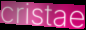
cristae